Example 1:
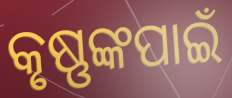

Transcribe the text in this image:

କୃଷ୍ଣଙ୍କପାଇଁ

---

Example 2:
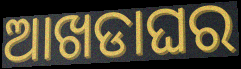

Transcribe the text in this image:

ଆଖଡାଘର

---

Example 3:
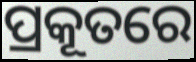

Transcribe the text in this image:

ପ୍ରକୂତରେ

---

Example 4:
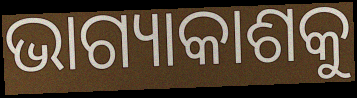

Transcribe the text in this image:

ଭାଗ୍ୟାକାଶକୁ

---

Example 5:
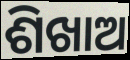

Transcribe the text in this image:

ଶିଖାଅ